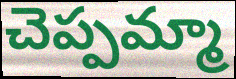
చెప్పమ్మా